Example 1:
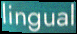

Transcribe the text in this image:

lingual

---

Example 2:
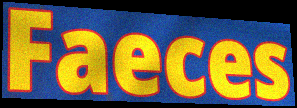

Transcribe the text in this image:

Faeces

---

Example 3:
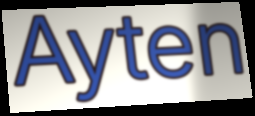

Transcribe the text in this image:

Ayten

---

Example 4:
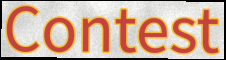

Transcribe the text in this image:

Contest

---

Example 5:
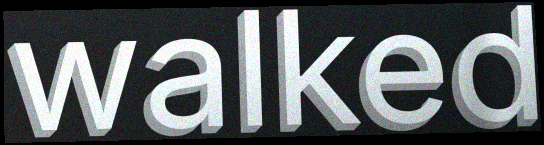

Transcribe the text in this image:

walked